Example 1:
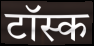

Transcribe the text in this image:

टॉस्‍क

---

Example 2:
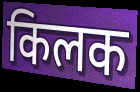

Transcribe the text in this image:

किलक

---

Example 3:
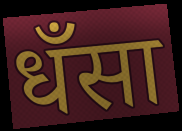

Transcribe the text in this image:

धँसा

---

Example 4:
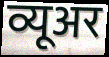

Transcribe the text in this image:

व्यूअर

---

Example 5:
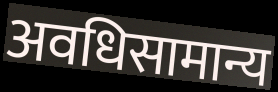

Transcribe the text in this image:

अवधिसामान्य